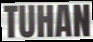
TUHAN